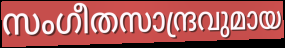
സംഗീതസാന്ദ്രവുമായ